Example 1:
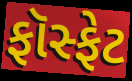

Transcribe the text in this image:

ફૉસ્ફેટ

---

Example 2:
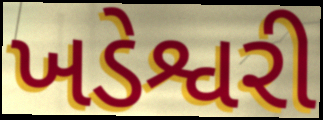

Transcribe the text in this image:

ખડેશ્વરી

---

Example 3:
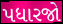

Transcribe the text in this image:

પધારજો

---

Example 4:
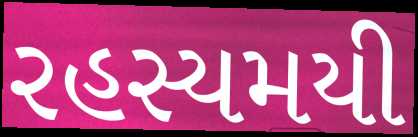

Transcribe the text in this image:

રહસ્યમયી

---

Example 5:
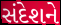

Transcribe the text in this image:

સંદેશને